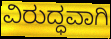
ವಿರುದ್ಧವಾಗಿ